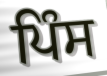
ਪਿੰਸ